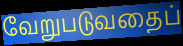
வேறுபடுவதைப்